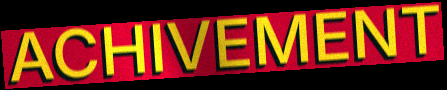
ACHIVEMENT